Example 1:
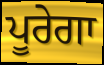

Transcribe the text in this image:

ਪੂਰੇਗਾ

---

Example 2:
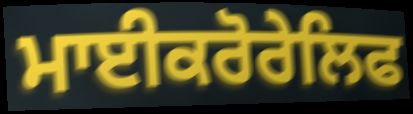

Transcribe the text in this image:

ਮਾਈਕਰੋਰੇਲਿਫ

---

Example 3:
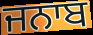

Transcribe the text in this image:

ਜਨਾਬ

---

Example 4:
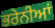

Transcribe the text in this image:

ਭਰੇਨੀਆਂ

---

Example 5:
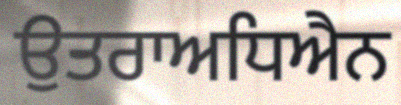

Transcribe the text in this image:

ਉਤਰਾਅਧਿਐਨ